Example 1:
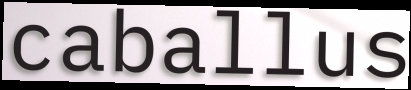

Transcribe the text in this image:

caballus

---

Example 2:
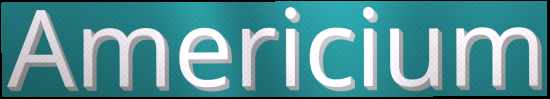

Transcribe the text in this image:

Americium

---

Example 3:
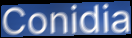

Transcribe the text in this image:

Conidia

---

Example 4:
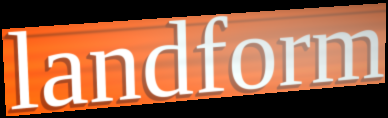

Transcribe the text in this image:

landform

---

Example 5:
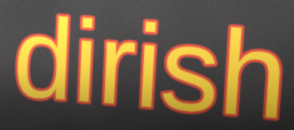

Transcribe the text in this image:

dirish